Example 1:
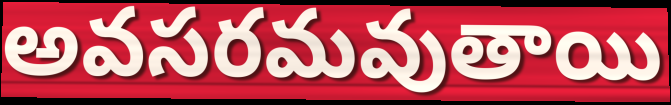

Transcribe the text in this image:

అవసరమవుతాయి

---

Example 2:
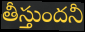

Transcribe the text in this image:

తీస్తుందనీ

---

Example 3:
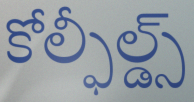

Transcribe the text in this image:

కోల్ఫీల్డ్స్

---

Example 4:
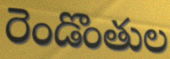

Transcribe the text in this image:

రెండొంతుల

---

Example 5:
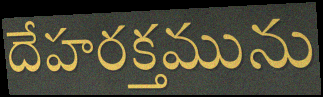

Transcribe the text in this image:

దేహరక్తమును